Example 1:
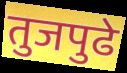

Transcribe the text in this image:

तुजपुढे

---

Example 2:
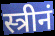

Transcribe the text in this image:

स्त्रीनं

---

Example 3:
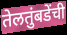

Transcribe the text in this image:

तेलतुंबडेंची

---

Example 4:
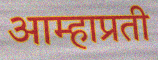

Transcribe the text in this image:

आम्हाप्रती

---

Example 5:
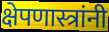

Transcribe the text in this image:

क्षेपणास्त्रांनी